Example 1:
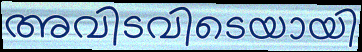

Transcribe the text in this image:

അവിടവിടെയായി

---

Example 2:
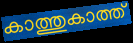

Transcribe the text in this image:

കാത്തുകാത്ത്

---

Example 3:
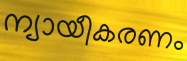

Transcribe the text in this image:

ന്യായീകരണം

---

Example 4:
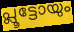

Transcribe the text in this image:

പ്ലൂട്ടോയും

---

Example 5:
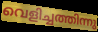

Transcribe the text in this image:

വെളിച്ചത്തിന്നു